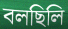
বলছিলি